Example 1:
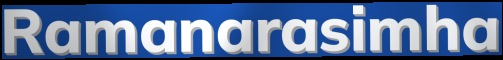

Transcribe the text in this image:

Ramanarasimha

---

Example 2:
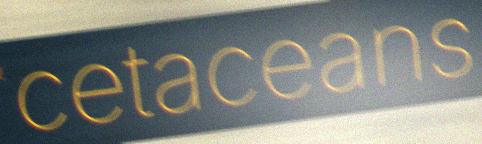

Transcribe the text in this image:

cetaceans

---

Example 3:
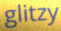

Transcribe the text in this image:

glitzy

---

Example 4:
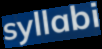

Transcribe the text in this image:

syllabi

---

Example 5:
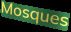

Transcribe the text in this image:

Mosques